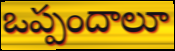
ఒప్పందాలూ